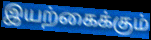
இயற்கைக்கும்